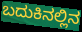
ಬದುಕಿನಲ್ಲಿನ